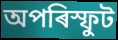
অপৰিস্ফুট